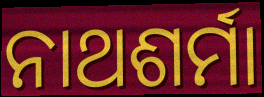
ନାଥଶର୍ମା